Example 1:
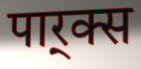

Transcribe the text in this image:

पार्क्स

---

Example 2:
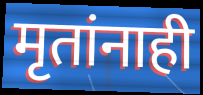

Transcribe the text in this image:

मृतांनाही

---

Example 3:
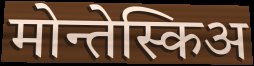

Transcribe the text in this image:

मोन्तेस्किअ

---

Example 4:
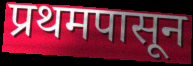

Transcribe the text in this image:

प्रथमपासून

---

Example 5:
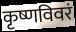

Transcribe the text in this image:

कृष्णविवरं